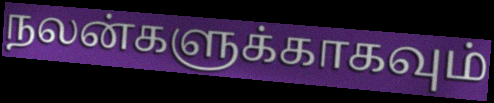
நலன்களுக்காகவும்